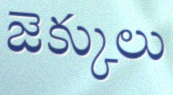
జెక్కులు